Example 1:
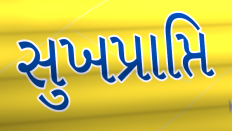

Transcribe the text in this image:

સુખપ્રાપ્તિ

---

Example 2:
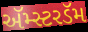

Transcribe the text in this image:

ઍમ્સ્ટરડૅમ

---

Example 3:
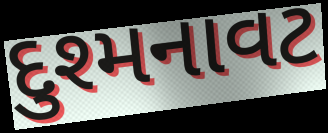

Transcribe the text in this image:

દુશ્મનાવટ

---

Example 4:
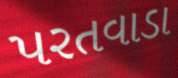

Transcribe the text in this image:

પરતવાડા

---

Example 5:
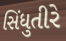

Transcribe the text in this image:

સિંધુતીરે